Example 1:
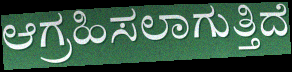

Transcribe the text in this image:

ಆಗ್ರಹಿಸಲಾಗುತ್ತಿದೆ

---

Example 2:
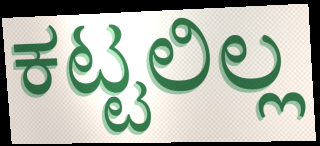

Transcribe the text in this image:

ಕಟ್ಟಲಿಲ್ಲ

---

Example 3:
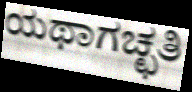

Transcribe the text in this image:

ಯಥಾಗಚ್ಛತಿ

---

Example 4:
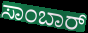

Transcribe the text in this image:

ಸಾಂಬಾರ್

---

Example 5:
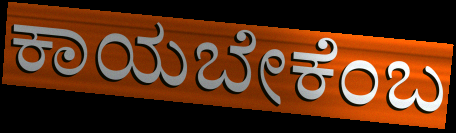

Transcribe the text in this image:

ಕಾಯಬೇಕೆಂಬ